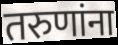
तरुणांना